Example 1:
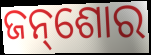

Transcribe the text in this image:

ଜନ୍‌ଶୋର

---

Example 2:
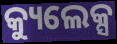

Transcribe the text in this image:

କ୍ୟୁଲେକ୍ସ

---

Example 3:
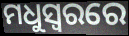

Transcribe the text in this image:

ମଧୁସ୍ୱରରେ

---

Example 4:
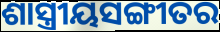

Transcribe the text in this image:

ଶାସ୍ତ୍ରୀୟସଙ୍ଗୀତର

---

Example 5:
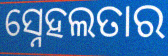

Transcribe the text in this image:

ସ୍ନେହଲତାର